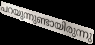
പറയുന്നുണ്ടായിരുന്നു